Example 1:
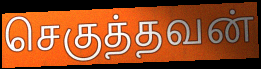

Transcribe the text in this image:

செகுத்தவன்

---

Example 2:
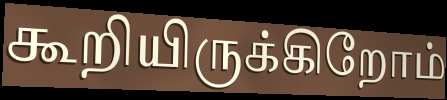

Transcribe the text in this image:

கூறியிருக்கிறோம்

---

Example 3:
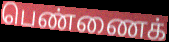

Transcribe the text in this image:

பெண்ணைக்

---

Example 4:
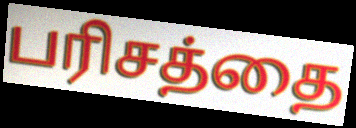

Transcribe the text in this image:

பரிசத்தை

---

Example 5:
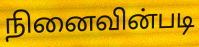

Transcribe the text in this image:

நினைவின்படி